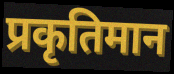
प्रकृतिमान